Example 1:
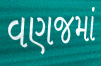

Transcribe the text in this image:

વણજમાં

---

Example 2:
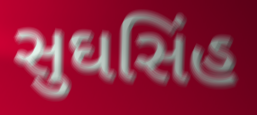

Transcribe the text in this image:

સુઘસિંહ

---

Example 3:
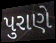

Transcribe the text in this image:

પુરાણે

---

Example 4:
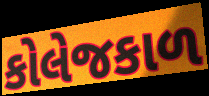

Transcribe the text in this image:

કોલેજકાળ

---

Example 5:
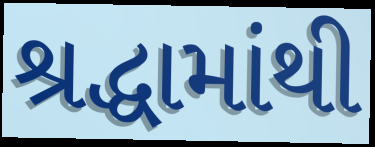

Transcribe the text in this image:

શ્રદ્ધામાંથી